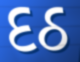
દઠ